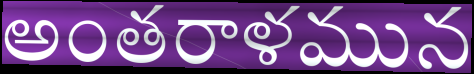
అంతరాళమున